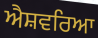
ਐਸ਼ਵਰਿਆ